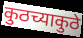
कुठच्याकुठे